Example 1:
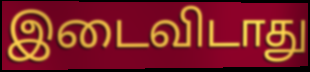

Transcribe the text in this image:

இடைவிடாது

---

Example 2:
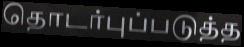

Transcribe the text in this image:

தொடர்புப்படுத்த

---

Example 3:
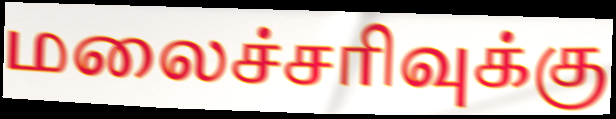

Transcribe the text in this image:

மலைச்சரிவுக்கு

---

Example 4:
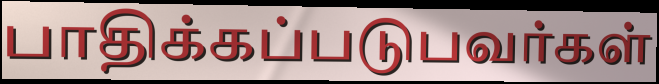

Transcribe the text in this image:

பாதிக்கப்படுபவர்கள்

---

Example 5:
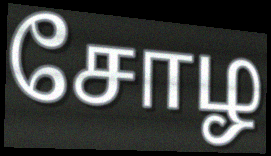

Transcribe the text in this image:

சோழ